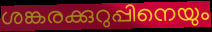
ശങ്കരക്കുറുപ്പിനെയും